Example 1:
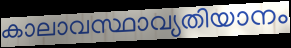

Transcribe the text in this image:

കാലാവസ്ഥാവ്യതിയാനം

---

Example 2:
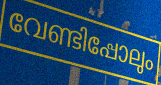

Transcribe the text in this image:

വേണ്ടിപ്പോലും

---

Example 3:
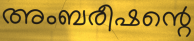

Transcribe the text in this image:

അംബരീഷന്റെ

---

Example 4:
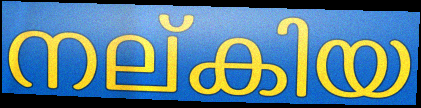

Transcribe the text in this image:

നല്‌കിയ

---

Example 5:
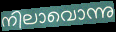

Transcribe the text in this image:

നിലാവൊന്നു